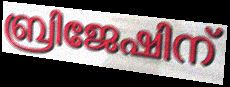
ബ്രിജേഷിന്